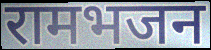
रामभजन